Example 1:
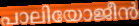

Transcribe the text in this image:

പാലിയോജീൻ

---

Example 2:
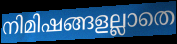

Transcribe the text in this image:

നിമിഷങ്ങളല്ലാതെ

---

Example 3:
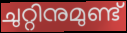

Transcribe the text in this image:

ചുറ്റിനുമുണ്ട്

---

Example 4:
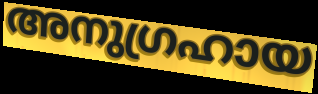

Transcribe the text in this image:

അനുഗ്രഹായ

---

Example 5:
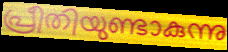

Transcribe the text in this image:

പ്രീതിയുണ്ടാകുന്നു